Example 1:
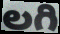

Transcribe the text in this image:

లగి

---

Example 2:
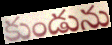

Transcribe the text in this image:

కుండును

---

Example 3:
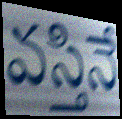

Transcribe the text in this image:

వస్తినే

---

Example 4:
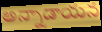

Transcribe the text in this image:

అన్నాడాయన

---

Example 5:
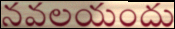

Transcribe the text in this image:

నవలయందు